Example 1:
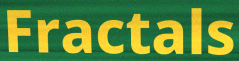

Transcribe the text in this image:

Fractals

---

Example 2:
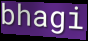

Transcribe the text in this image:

bhagi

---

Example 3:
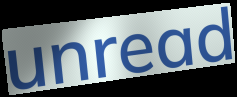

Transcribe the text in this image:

unread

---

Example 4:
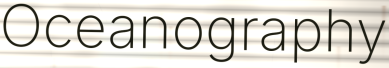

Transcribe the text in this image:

Oceanography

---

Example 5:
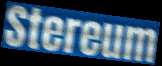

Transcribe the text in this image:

Stereum